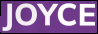
JOYCE